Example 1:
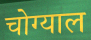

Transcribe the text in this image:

चोग्याल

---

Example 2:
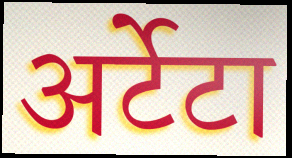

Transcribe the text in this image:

अर्टेटा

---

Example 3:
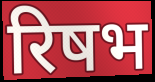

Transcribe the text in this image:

रिषभ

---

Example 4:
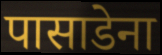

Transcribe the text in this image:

पासाडेना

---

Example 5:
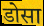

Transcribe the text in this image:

डोसा